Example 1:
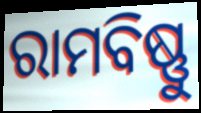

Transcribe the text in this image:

ରାମବିଷ୍ଣୁ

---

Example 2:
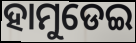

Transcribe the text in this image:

ହାମୁଡେଇ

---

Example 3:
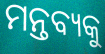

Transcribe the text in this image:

ମନ୍ତବ୍ୟକୁ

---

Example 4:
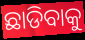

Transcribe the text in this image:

ଛାଡିବାକୁ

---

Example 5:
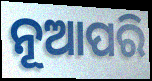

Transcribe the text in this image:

ନୂଆପରି